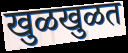
खुळखुळत